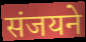
संजयने